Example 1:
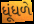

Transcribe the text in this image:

ધૂંધળે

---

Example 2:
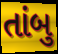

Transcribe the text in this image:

તાંબુ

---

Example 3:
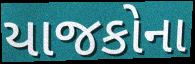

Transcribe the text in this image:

યાજકોના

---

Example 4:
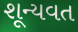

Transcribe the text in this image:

શૂન્યવત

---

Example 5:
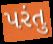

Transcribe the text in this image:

પરંતુ